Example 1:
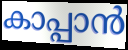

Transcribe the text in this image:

കാപ്പാൻ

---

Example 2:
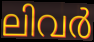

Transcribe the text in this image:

ലിവർ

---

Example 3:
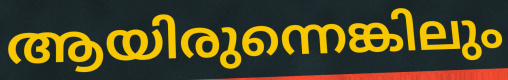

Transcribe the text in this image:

ആയിരുന്നെങ്കിലും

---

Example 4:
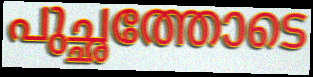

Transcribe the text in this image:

പുച്ഛത്തോടെ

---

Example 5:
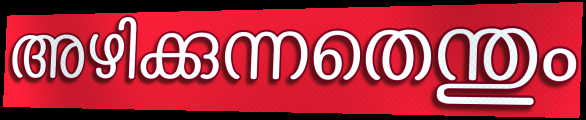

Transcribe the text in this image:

അഴിക്കുന്നതെന്തും